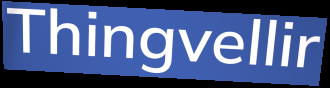
Thingvellir